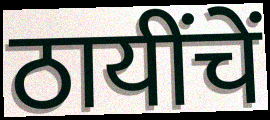
ठायींचें